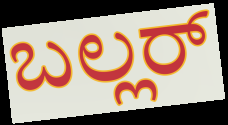
ಬಲ್ಲರ್